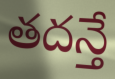
తదన్తే